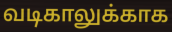
வடிகாலுக்காக